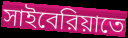
সাইবেরিয়াতে